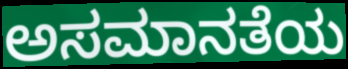
ಅಸಮಾನತೆಯ